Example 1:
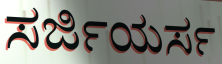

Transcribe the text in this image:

ಸರ್ಜಿಯರ್ಸ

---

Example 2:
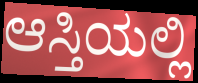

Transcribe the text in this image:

ಆಸ್ತಿಯಲ್ಲಿ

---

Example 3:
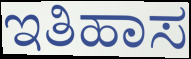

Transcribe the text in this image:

ಇತಿಹಾಸ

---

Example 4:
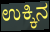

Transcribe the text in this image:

ಉಕ್ಕಿನ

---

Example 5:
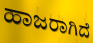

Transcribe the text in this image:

ಹಾಜರಾಗಿದೆ